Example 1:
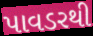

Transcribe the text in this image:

પાવડરથી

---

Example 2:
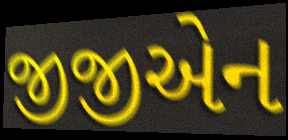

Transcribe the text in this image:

જીજીએન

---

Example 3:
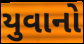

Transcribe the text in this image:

યુવાનો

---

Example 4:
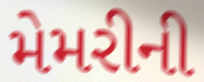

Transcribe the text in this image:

મેમરીની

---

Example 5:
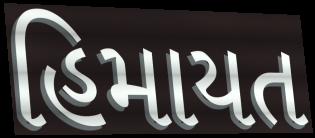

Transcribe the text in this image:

હિમાયત